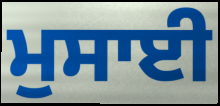
ਮੁਸਾਈ